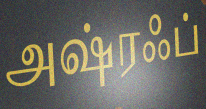
அஷ்ரஃப்